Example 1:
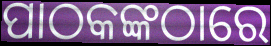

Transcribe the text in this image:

ପାଠକଙ୍କଠାରେ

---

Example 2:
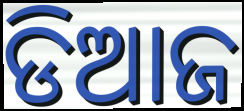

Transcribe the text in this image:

ଡିଆଜ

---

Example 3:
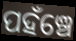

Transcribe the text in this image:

ପହଁଞ୍ଚେ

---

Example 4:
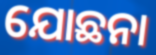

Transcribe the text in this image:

ଯୋଛନା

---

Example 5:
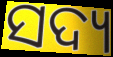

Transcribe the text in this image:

ସଦ୍ଯ